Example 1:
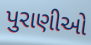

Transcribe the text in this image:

પુરાણીઓ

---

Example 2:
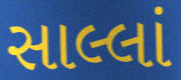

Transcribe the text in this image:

સાલ્લાં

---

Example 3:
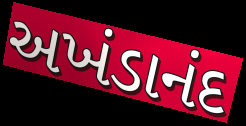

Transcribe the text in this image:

અખંડાનંદ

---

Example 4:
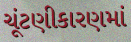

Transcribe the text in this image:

ચૂંટણીકારણમાં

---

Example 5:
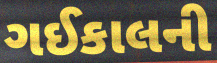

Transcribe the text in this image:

ગઈકાલની